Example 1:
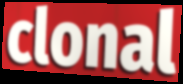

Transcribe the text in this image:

clonal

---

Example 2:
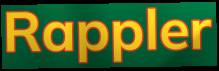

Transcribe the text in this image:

Rappler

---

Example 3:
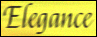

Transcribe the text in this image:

Elegance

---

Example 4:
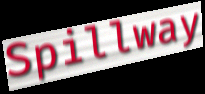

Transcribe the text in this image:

Spillway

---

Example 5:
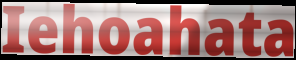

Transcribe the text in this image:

Iehoahata